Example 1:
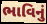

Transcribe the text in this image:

ભાવિનું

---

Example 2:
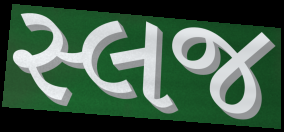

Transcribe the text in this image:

સ્લજ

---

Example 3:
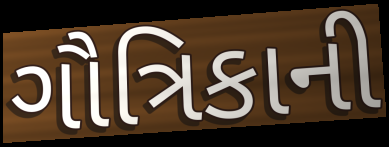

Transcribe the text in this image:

ગૌત્રિકાની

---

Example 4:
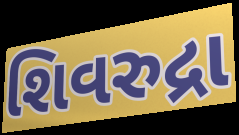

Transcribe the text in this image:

શિવરુદ્રા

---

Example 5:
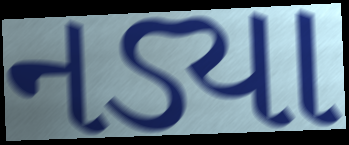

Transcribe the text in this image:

નડ્યા